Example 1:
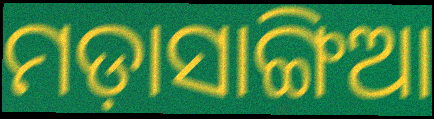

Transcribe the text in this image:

ମଡ଼ାସାଙ୍ଗିଆ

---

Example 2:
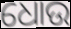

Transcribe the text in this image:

ଧୋଉ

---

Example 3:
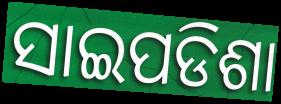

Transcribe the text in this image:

ସାଇପଡିଶା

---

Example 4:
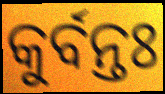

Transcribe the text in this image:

କୁର୍ବନ୍ତଃ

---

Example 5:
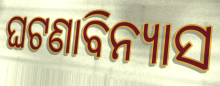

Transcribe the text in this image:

ଘଟଣାବିନ୍ୟାସ